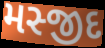
મસ્જીદ